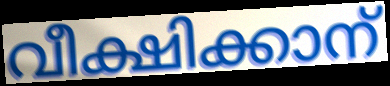
വീക്ഷിക്കാന്